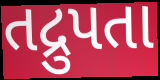
તદ્રુપતા